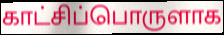
காட்சிப்பொருளாக